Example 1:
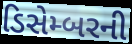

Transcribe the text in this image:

ડિસેમ્બરની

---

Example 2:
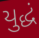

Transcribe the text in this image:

યુદ્ધં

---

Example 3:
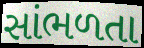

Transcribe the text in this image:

સાંભળતા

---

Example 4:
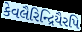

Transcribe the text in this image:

કેવલૈરિન્દ્રિયૈરપિ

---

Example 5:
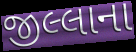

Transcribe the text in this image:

જીલ્લાના